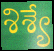
శిశ్యే